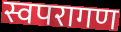
स्वपरागण